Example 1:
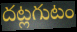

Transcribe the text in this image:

దట్లగుటం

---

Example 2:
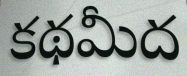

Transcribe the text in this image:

కథమీద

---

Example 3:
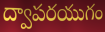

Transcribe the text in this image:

ద్వాపరయుగం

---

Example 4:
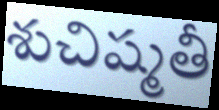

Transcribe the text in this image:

శుచిష్మతీ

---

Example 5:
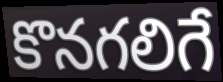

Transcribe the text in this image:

కొనగలిగే